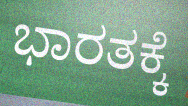
ಭಾರತಕ್ಕೆ